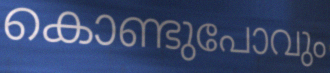
കൊണ്ടുപോവും